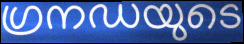
ഗ്രനഡയുടെ